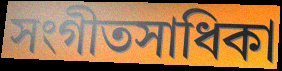
সংগীতসাধিকা